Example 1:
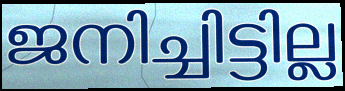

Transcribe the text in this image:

ജനിച്ചിട്ടില്ല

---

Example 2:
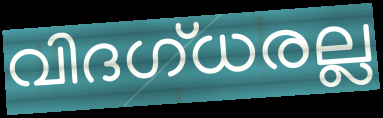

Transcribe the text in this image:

വിദഗ്ധരല്ല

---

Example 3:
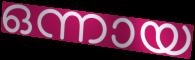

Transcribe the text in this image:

ഒന്നായ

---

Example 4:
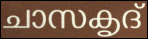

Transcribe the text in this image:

ചാസകൃദ്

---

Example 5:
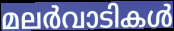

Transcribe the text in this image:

മലർവാടികൾ